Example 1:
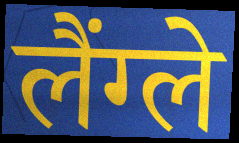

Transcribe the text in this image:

लैंग्ले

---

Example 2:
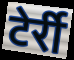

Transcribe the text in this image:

टेर्री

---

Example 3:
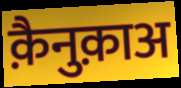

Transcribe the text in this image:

क़ैनुक़ाअ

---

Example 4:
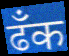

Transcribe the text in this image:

ढँक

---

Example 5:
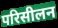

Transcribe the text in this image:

परिसीलन